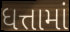
ધત્તામાં